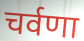
चर्वणा